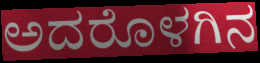
ಅದರೊಳಗಿನ